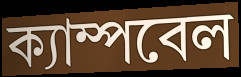
ক্যাম্পবেল